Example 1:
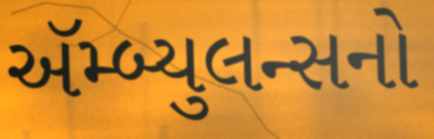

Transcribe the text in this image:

ઍમ્બ્યુલન્સનો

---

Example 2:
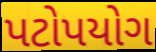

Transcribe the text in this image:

પટોપયોગ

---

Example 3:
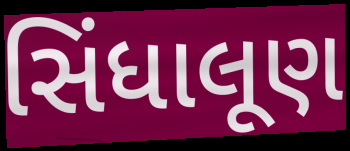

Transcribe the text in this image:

સિંધાલૂણ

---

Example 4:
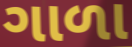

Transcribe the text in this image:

ગાળા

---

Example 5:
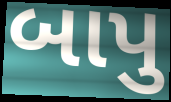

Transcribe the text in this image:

બાપુ